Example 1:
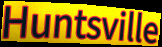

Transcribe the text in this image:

Huntsville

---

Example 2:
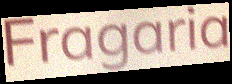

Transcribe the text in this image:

Fragaria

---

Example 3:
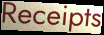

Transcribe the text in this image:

Receipts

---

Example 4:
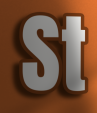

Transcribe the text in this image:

St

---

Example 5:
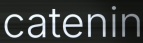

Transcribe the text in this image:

catenin